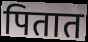
पितात